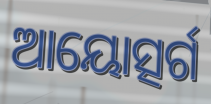
ଆୟୋତ୍ସର୍ଗ